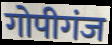
गोपीगंज